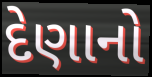
દેણાનો